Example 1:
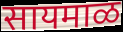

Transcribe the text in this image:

सायमाळ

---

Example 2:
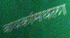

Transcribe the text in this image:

बायकांमधला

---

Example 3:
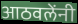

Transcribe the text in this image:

आठवलेंनी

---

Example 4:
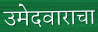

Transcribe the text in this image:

उमेदवाराचा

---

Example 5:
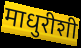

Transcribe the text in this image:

माधुरीशी